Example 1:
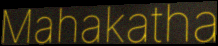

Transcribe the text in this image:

Mahakatha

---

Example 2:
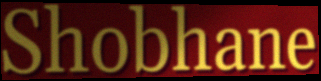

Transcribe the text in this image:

Shobhane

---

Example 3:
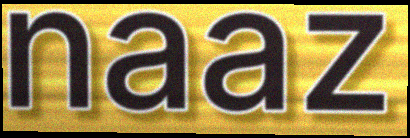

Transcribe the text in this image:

naaz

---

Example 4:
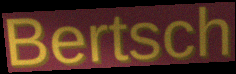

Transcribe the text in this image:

Bertsch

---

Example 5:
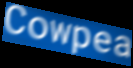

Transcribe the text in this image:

Cowpea